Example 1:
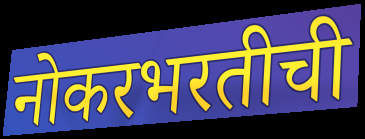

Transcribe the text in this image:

नोकरभरतीची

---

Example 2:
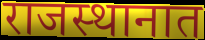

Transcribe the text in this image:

राजस्थानात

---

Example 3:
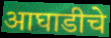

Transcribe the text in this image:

आघाडीचे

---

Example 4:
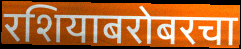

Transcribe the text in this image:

रशियाबरोबरचा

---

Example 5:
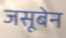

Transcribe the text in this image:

जसूबेन